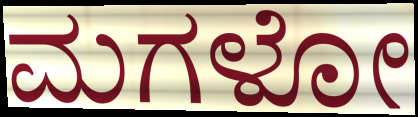
ಮಗಳೋ